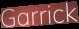
Garrick